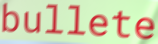
bullete